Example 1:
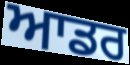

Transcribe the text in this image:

ਆਡਰ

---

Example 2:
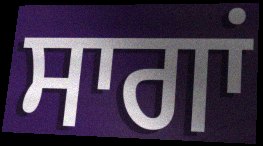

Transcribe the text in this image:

ਸਾਗਾਂ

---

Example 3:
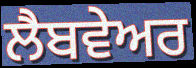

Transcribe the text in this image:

ਲੈਬਵੇਅਰ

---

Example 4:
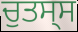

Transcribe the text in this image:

ਚੁਤਸ੍ਸ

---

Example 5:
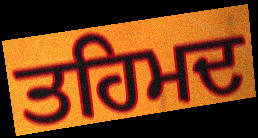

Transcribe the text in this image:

ਤਹਿਮਦ